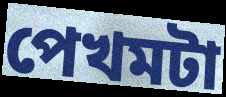
পেখমটা